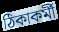
ঠিকাকর্মী